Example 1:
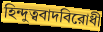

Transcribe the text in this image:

হিন্দুত্ববাদবিরোধী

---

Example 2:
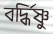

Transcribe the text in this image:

বর্দ্ধিষ্ণু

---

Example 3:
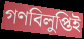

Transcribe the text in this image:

গণবিলুপ্তিই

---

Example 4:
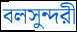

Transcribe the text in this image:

বলসুন্দরী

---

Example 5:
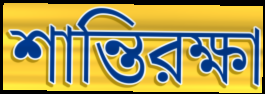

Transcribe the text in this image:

শান্তিরক্ষা